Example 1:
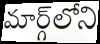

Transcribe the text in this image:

మార్గ్‌లోని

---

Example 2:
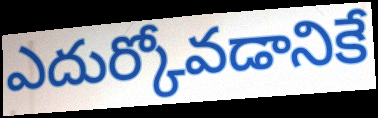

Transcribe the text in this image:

ఎదుర్కోవడానికే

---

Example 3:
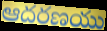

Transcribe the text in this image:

ఆదరణయు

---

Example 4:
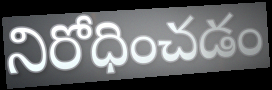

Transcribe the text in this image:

నిరోధించడం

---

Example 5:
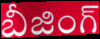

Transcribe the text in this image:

బీజింగ్